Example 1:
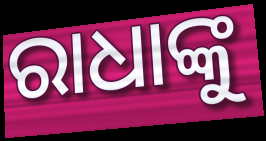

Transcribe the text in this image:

ରାଧାଙ୍କୁ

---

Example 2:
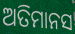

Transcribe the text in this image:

ଅତିମାନସ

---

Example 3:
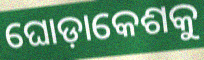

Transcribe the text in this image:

ଘୋଡ଼ାକେଶକୁ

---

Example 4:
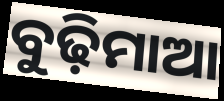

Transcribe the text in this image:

ବୁଢ଼ିମାଆ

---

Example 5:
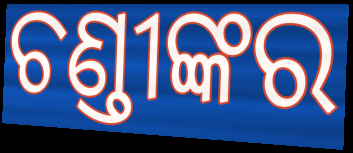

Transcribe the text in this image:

ଚଣ୍ଡୀଙ୍କର